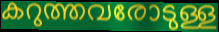
കറുത്തവരോടുള്ള